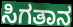
ಸಿಗತಾನ